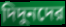
দিদুনদের